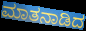
ಮಾತನಾಡಿದ